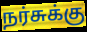
நர்சுக்கு